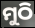
ମୁଠି